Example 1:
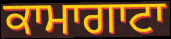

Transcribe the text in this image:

ਕਾਮਾਗਾਟਾ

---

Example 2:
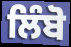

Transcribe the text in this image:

ਲਿੰਬੋ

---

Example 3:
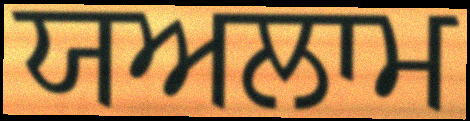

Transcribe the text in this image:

ਯਅਲਾਮ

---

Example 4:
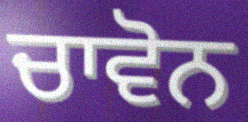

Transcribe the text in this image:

ਚਾਵੋਨ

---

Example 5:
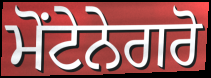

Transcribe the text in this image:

ਮੋਂਟੇਨੇਗਰੋ